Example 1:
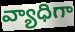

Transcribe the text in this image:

వ్యాధిగా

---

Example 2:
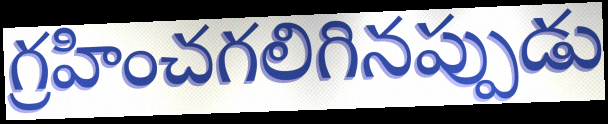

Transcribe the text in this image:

గ్రహించగలిగినప్పుడు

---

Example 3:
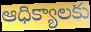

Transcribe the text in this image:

ఆధిక్యాలకు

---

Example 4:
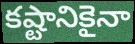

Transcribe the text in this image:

కష్టానికైనా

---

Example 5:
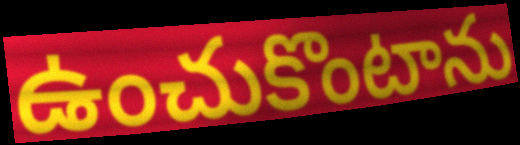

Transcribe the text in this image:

ఉంచుకొంటాను